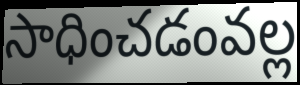
సాధించడంవల్ల